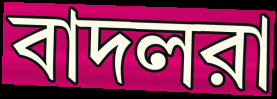
বাদলরা